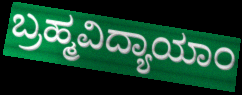
ಬ್ರಹ್ಮವಿದ್ಯಾಯಾಂ